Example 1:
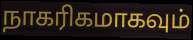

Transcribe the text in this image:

நாகரிகமாகவும்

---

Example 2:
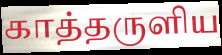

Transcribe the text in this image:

காத்தருளிய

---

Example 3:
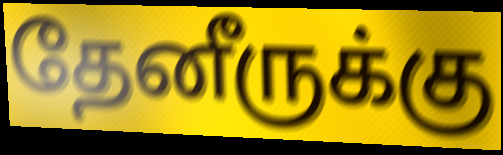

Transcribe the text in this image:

தேனீருக்கு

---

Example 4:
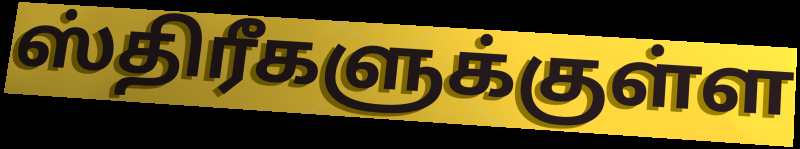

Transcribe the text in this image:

ஸ்திரீகளுக்குள்ள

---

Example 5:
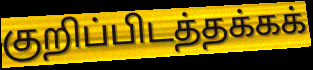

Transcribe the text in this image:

குறிப்பிடத்தக்கக்